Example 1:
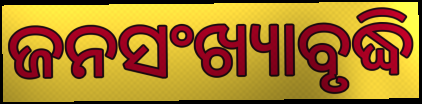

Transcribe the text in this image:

ଜନସଂଖ୍ୟାବୃଦ୍ଧି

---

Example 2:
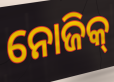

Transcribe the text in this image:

ନୋଜିକ୍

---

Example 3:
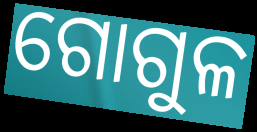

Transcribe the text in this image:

ଗୋଗୁଳ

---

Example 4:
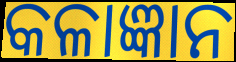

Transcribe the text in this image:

କଳାଜ୍ଞାନ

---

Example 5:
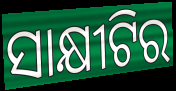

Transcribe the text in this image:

ସାକ୍ଷୀଟିର